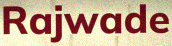
Rajwade